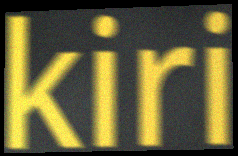
kiri